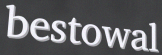
bestowal